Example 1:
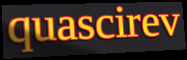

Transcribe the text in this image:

quascirev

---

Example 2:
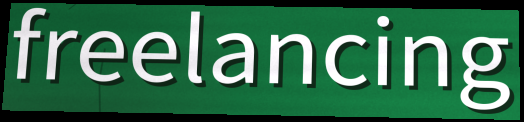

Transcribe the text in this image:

freelancing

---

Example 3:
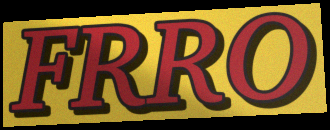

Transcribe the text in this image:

FRRO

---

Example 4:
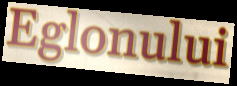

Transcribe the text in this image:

Eglonului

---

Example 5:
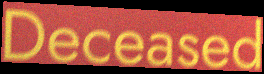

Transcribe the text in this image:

Deceased